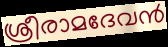
ശ്രീരാമദേവൻ